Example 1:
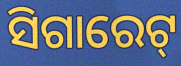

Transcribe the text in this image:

ସିଗାରେଟ୍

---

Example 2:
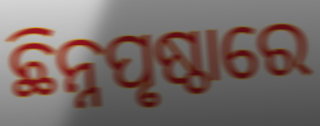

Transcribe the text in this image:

ଛିନ୍ନପୃଷ୍ଠାରେ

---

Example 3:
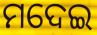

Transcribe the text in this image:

ମଦେଇ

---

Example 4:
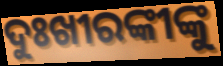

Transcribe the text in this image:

ଦୁଃଖୀରଙ୍କୀଙ୍କୁ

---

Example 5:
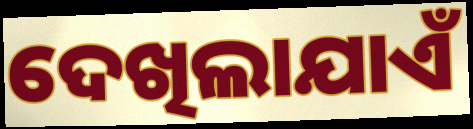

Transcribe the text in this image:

ଦେଖିଲାଯାଏଁ